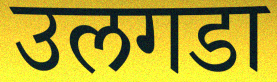
उलगडा